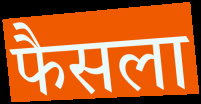
फैसला